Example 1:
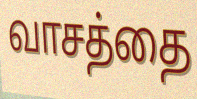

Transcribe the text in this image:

வாசத்தை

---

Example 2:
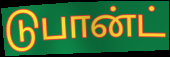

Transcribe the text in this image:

டுபான்ட்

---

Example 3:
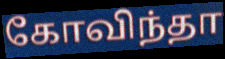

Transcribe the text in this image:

கோவிந்தா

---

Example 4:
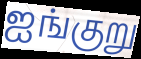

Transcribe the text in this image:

ஐங்குறு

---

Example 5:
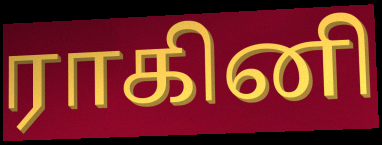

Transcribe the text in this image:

ராகினி